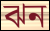
ঝন